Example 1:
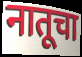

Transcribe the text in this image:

नातूचा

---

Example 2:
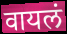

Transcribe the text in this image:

वायलं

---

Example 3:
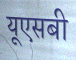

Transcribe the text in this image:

यूएसबी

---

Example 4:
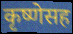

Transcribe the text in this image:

कृष्णेसह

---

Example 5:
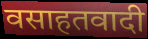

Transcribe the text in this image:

वसाहतवादी